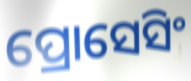
ପ୍ରୋସେସିଂ